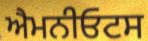
ਐਮਨੀਓਟਸ